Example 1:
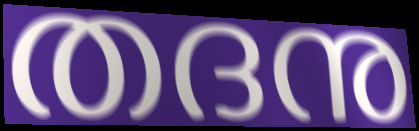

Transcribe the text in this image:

തദനു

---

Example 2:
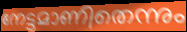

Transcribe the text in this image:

നേട്ടമാണിതെന്നും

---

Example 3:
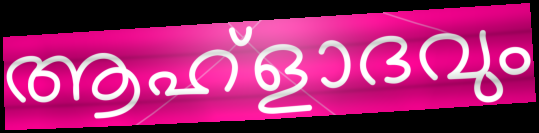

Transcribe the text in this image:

ആഹ്ളാദവും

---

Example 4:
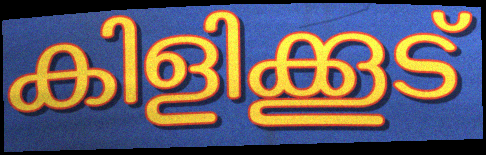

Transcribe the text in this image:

കിളിക്കൂട്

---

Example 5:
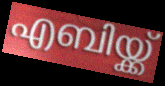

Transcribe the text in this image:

എബിയ്ക്ക്